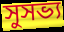
সুসভ্য